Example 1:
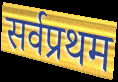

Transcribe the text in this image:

सर्वप्रथम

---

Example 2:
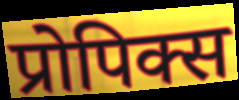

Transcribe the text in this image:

प्रोपिक्स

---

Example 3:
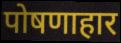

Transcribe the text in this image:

पोषणाहार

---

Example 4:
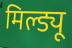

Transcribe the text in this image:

मिल्ड्यू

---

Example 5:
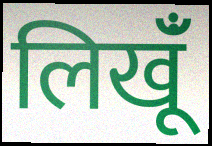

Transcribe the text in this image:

लिखूंँ